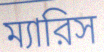
ম্যারিস